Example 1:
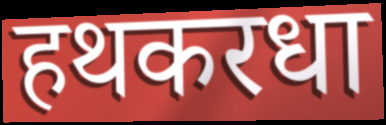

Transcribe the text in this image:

हथकरधा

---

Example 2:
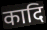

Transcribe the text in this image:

कादि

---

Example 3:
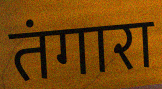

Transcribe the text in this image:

तंगारा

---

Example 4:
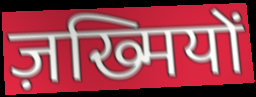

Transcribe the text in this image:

ज़ख्मियों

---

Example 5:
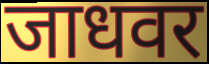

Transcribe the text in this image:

जाधवर